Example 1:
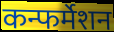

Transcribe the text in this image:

कन्‍फर्मेशन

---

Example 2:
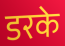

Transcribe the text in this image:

डरके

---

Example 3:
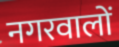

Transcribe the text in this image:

नगरवालों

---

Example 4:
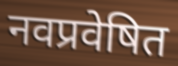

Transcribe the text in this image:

नवप्रवेषित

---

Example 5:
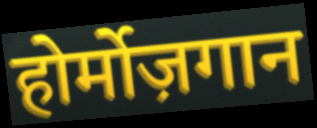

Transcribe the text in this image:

होर्मोज़गान